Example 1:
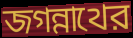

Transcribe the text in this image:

জগন্নাথের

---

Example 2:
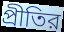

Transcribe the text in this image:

প্রীতির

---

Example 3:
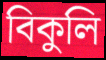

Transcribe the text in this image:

বিকুলি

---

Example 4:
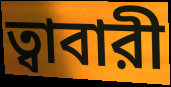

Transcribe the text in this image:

ত্বাবারী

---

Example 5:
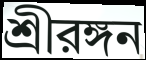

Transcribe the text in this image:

শ্রীরঙ্গন